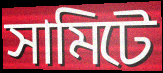
সামিটে